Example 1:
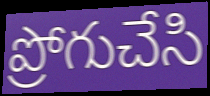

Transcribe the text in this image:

ప్రోగుచేసి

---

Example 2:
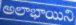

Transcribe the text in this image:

అలాభాయిని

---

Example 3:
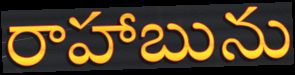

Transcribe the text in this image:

రాహాబును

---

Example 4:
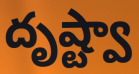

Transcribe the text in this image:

దృష్ట్వా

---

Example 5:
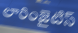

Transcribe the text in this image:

లారింజైటిస్